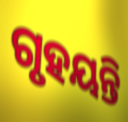
ଗୃହୟନ୍ତି